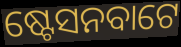
ଷ୍ଟେସନବାଟେ